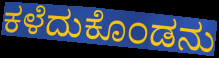
ಕಳೆದುಕೊಂಡನು